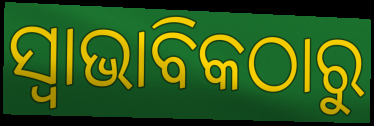
ସ୍ୱାଭାବିକଠାରୁ